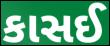
કાસઈ